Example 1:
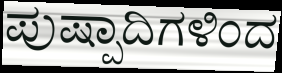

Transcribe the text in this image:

ಪುಷ್ಪಾದಿಗಳಿಂದ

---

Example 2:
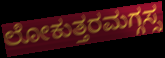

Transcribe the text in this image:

ಲೋಕುತ್ತರಮಗ್ಗಸ್ಸ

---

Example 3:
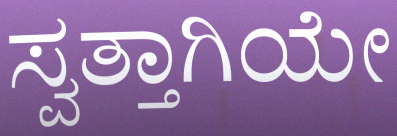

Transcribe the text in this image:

ಸ್ವತ್ತಾಗಿಯೇ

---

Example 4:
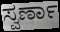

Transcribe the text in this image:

ಸ್ವರ್ಣಾ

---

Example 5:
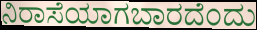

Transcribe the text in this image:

ನಿರಾಸೆಯಾಗಬಾರದೆಂದು